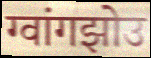
ग्वांगझोउ